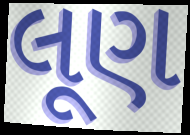
લૂણ